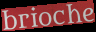
brioche